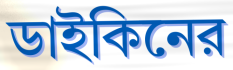
ডাইকিনের